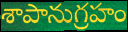
శాపానుగ్రహం